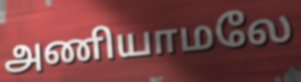
அணியாமலே